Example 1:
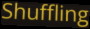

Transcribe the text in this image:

Shuffling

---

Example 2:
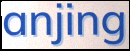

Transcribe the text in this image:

anjing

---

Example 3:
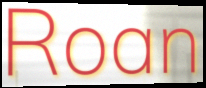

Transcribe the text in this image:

Roan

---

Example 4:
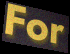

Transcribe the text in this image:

For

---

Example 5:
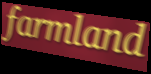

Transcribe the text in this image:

farmland